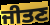
ਜੀਤਣ